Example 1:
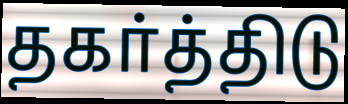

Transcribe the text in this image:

தகர்த்திடு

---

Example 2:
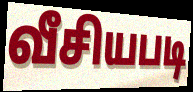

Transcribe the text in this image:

வீசியபடி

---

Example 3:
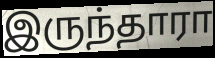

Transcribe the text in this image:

இருந்தாரா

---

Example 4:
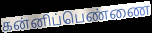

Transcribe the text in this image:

கன்னிப்பெண்ணை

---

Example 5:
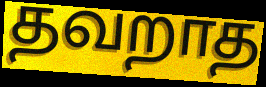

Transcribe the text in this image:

தவறாத